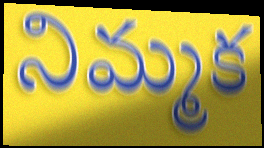
నిమ్మక